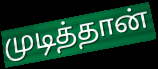
முடித்தான்